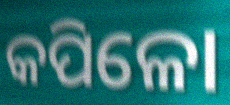
କପିଳୋ